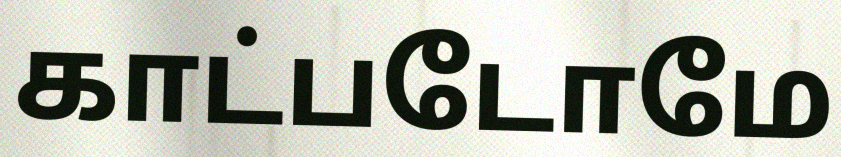
காட்படோமே